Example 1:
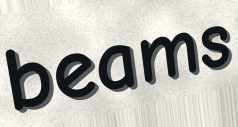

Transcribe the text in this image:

beams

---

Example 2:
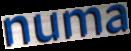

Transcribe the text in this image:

numa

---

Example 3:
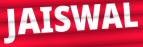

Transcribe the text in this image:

JAISWAL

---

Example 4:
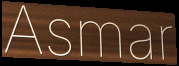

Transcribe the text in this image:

Asmar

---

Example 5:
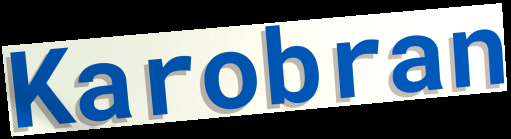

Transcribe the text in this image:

Karobran